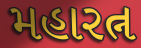
મહારત્ન